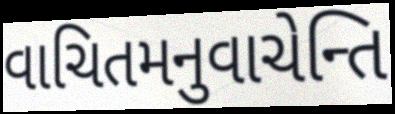
વાચિતમનુવાચેન્તિ